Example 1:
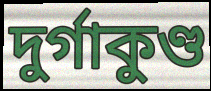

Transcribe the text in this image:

দুর্গাকুণ্ড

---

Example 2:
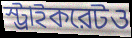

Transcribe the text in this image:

স্ট্রাইকরেটও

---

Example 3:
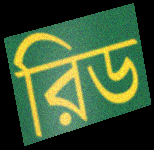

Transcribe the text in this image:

রিড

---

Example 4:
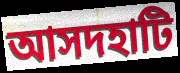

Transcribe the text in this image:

আসদহাটি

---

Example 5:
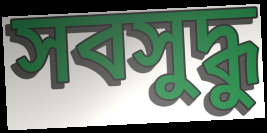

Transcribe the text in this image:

সবসুদ্ধু